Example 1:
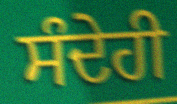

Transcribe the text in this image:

ਸੰਦੇਹੀ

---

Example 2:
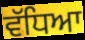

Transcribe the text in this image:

ਵੱਧਿਆ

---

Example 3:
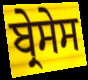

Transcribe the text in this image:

ਬ੍ਰੇਸੇਸ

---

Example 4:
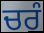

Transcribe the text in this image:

ਚਰੰ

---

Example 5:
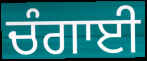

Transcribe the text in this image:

ਚੰਗਾਈ